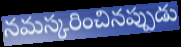
నమస్కరించినప్పుడు